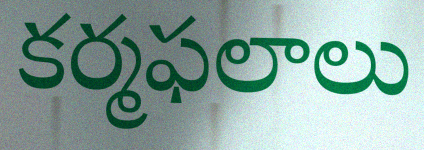
కర్మఫలాలు